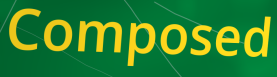
Composed